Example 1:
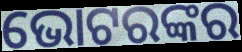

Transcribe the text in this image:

ଭୋଟରଙ୍କର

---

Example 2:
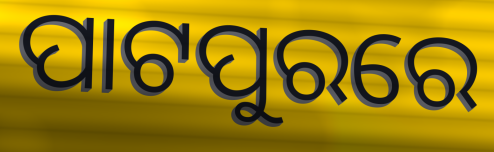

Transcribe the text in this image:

ପାଟପୁରରେ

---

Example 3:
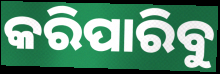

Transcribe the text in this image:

କରିପାରିବୁ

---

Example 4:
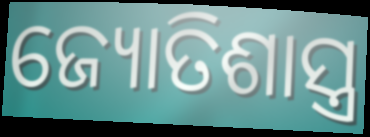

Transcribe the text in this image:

ଜ୍ୟୋତିଶାସ୍ତ୍ର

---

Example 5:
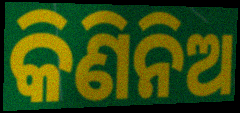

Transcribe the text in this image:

କିଣିନିଅ